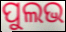
ପୁଲଭ